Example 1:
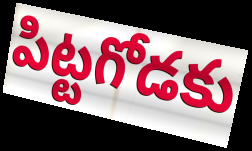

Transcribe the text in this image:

పిట్టగోడకు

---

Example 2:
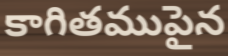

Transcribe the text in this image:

కాగితముపైన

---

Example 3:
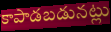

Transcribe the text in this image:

కాపాడబడునట్లు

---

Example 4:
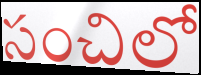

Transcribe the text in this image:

సంచిలో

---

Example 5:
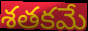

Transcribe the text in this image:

శతకమే